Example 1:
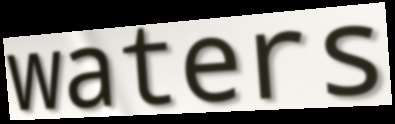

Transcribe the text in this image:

waters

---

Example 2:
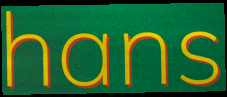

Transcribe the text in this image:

hans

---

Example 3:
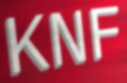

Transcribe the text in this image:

KNF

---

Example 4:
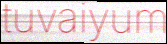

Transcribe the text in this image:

tuvaiyum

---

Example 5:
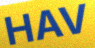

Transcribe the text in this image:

HAV